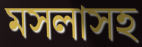
মসলাসহ